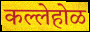
कल्लेहोळ